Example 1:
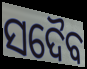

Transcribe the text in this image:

ସଦୈବ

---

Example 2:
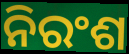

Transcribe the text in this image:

ନିରଂଶ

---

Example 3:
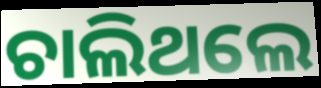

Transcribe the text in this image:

ଚାଲିଥଲେ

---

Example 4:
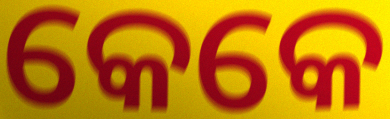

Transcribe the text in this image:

କେକେ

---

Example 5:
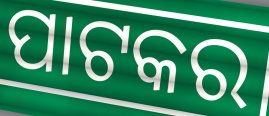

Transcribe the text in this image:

ପାଟକର